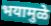
भयामुळे